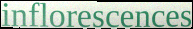
inflorescences